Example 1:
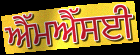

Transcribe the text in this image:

ਐੱਮਐੱਸਈ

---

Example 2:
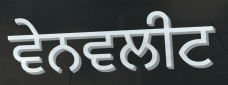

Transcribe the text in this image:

ਵੇਨਵਲੀਟ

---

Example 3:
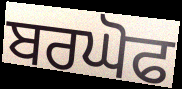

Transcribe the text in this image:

ਬਰਘੋਫ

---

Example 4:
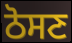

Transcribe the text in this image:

ਠੋਸਣ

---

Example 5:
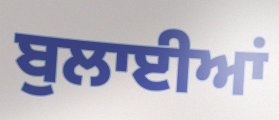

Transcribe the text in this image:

ਬੁਲਾਈਆਂ